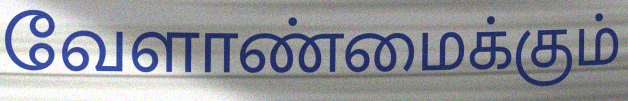
வேளாண்மைக்கும்